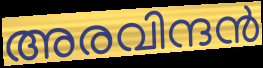
അരവിന്ദൻ